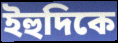
ইহুদিকে